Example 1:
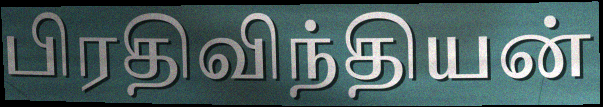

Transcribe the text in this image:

பிரதிவிந்தியன்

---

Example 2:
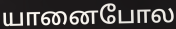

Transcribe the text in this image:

யானைபோல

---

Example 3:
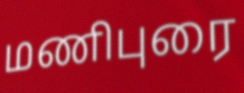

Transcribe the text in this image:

மணிபுரை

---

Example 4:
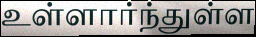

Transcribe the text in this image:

உள்ளார்ந்துள்ள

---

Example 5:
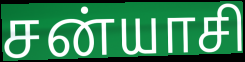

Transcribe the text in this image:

சன்யாசி